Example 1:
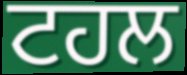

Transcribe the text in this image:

ਟਹਲ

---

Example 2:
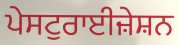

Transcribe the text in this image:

ਪੇਸਟੁਰਾਈਜ਼ੇਸ਼ਨ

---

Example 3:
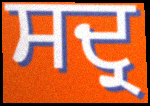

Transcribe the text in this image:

ਸਦ੍ਰ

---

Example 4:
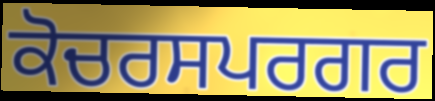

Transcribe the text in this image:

ਕੋਚਰਸਪਰਗਰ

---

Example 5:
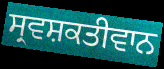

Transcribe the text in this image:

ਸ੍ਰਵਸ਼ਕਤੀਵਾਨ